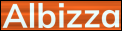
Albizza